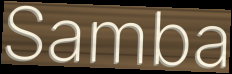
Samba